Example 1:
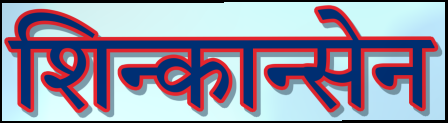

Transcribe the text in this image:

शिन्कान्सेन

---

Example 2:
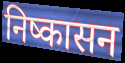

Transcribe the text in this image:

निष्कासन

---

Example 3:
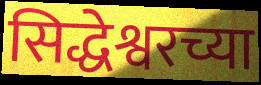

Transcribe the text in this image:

सिद्धेश्वरच्या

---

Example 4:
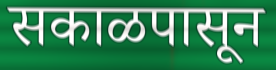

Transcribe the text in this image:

सकाळपासून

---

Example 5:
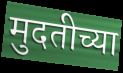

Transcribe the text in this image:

मुदतीच्या